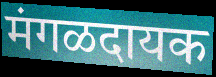
मंगळदायक